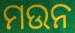
ମଉନ